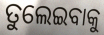
ତୁଲେଇବାକୁ